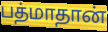
பத்மாதான்